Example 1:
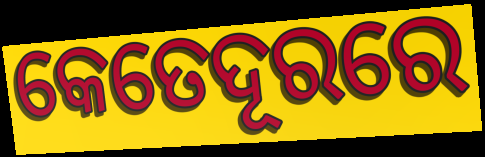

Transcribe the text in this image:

କେତେଦୂରରେ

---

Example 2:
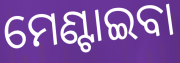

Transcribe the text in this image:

ମେଣ୍ଟାଇବା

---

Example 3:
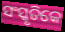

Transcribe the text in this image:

ସଂସ୍କୃତିକେ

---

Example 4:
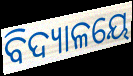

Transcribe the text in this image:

ବିଦ୍ୟାଳୟେ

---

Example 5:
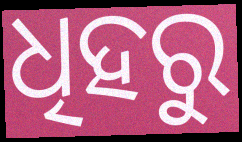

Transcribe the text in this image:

ଧିହରୁ